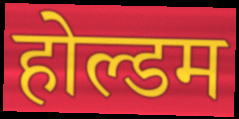
होल्डम